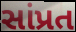
સાંપ્રત